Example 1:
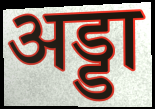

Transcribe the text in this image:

अड्डा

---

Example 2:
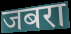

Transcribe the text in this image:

जबरा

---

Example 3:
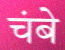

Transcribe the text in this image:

चंबे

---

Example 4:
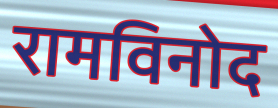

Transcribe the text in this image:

रामविनोद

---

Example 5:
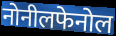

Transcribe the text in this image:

नोनीलफेनोल